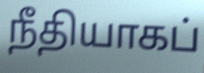
நீதியாகப்